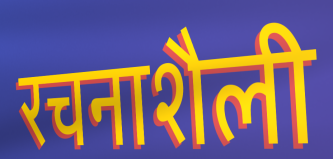
रचनाशैली